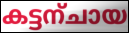
കട്ടന്ചായ